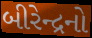
બીરેન્દ્રનો